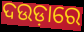
ଦଉଡ଼ାରେ